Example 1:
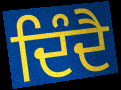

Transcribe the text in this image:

ਦਿੰਦੈ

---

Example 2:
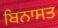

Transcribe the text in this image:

ਬਿਨਾਸਤ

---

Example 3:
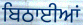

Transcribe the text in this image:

ਬਿਠਾਈਆਂ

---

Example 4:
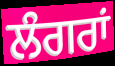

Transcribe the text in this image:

ਲੰਗਰਾਂ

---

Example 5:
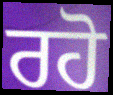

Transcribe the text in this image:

ਰਹੋ